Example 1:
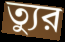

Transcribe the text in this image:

ত্যুর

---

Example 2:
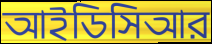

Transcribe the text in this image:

আইডিসিআর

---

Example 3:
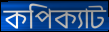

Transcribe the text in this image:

কপিক্যাট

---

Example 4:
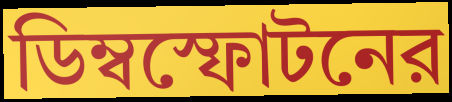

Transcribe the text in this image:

ডিম্বস্ফোটনের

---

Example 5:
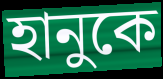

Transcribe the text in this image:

হানুকে